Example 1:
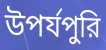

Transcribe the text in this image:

উপর্যপুরি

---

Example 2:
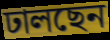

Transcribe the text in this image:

ঢালছেন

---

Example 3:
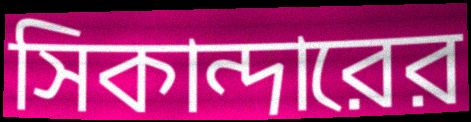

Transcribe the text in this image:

সিকান্দারের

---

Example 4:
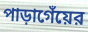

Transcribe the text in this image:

পাড়াগেঁয়ের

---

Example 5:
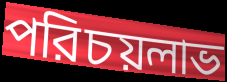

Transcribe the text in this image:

পরিচয়লাভ